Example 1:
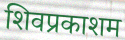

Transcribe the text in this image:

शिवप्रकाशम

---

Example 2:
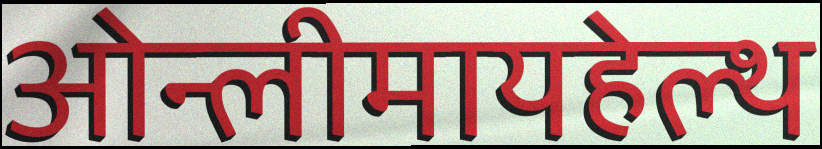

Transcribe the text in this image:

ओन्लीमायहेल्थ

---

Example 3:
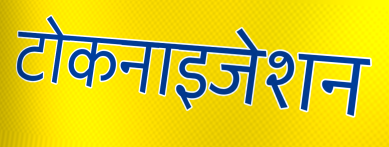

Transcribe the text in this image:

टोकनाइजेशन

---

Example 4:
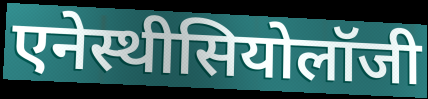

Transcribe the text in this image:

एनेस्थीसियोलॉजी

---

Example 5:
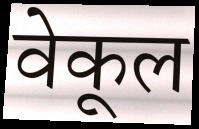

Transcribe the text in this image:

वेकूल